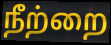
நீற்றை